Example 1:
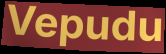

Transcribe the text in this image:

Vepudu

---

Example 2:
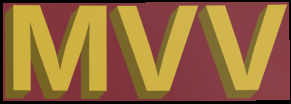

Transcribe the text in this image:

MVV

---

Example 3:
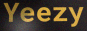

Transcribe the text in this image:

Yeezy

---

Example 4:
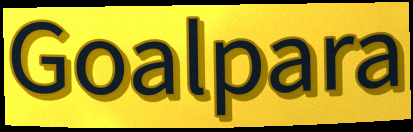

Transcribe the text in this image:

Goalpara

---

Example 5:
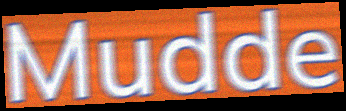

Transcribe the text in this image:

Mudde